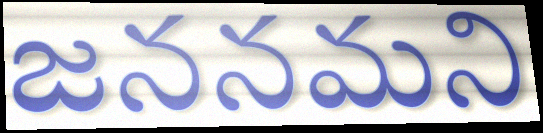
జననమని